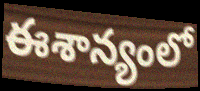
ఈశాన్యంలో